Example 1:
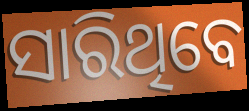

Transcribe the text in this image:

ସାରିଥିବେ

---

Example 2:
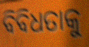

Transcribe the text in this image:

ବିବିଧତାକୁ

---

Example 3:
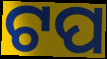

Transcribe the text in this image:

ଟପ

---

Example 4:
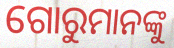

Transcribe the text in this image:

ଗୋରୁମାନଙ୍କୁ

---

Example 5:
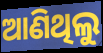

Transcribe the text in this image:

ଆଣିଥିଲୁ